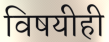
विषयीही